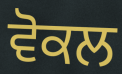
ਵੋਕਲ